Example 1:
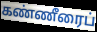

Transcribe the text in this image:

கண்ணீரைப்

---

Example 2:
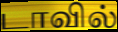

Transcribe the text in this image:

டாவில்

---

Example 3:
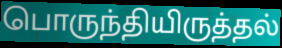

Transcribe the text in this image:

பொருந்தியிருத்தல்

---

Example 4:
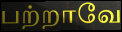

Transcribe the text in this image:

பற்றாவே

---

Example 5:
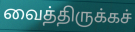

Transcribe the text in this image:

வைத்திருக்கச்